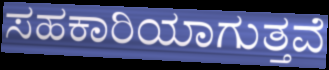
ಸಹಕಾರಿಯಾಗುತ್ತವೆ